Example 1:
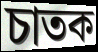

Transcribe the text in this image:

চাতক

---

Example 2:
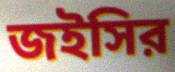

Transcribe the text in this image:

জইসির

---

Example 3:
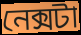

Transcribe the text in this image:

নেক্সটা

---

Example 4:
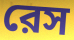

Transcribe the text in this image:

রেস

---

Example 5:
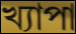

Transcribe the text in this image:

খ্যাপা